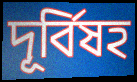
দূর্বিষহ